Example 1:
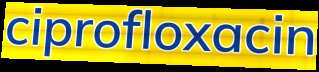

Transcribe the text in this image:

ciprofloxacin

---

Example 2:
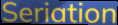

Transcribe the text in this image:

Seriation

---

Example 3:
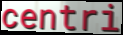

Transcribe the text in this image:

centri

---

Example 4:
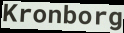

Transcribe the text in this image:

Kronborg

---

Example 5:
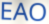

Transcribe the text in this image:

EAO